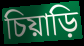
চিয়াড়ি